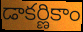
డాకర్ణికాం